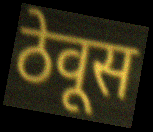
ठेवूस